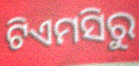
ଟିଏମସିରୁ